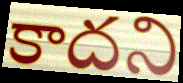
కాదని